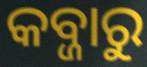
କବ୍ଜାରୁ